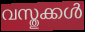
വസ്തുക്കൾ